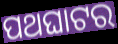
ପଥଘାଟର